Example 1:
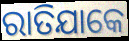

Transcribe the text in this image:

ରାତିଯାକେ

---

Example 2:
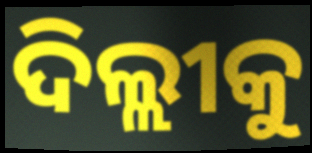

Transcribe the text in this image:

ଦିଲ୍ଲୀକୁ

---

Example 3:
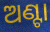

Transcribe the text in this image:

ଅଣ୍ଟା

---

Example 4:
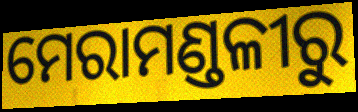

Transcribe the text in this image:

ମେରାମଣ୍ଡଳୀରୁ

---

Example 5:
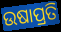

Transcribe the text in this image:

ଉଷାପ୍ରତି